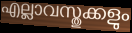
എല്ലാവസ്തുക്കളും